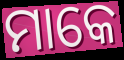
ମାକେ